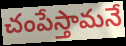
చంపేస్తామనే